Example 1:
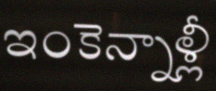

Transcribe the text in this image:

ఇంకెన్నాళ్లీ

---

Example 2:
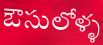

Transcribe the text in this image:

ఔసులోళ్ళ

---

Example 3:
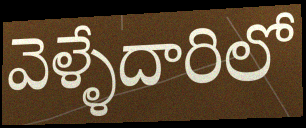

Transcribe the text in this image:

వెళ్ళేదారిలో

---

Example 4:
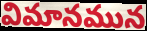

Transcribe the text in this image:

విమానమున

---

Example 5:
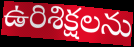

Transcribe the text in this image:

ఉరిశిక్షలను